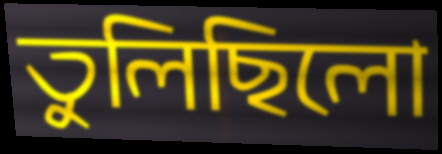
তুলিছিলো